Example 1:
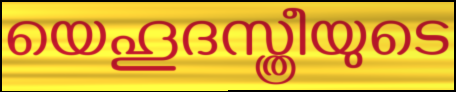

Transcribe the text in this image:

യെഹൂദസ്ത്രീയുടെ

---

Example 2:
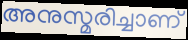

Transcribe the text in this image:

അനുസ്മരിച്ചാണ്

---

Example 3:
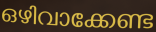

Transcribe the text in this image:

ഒഴിവാക്കേണ്ട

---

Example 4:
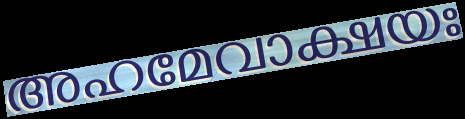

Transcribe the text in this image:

അഹമേവാക്ഷയഃ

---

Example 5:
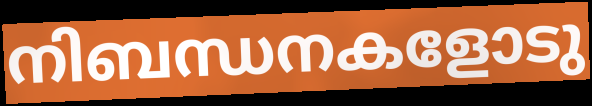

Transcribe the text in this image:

നിബന്ധനകളോടു